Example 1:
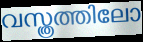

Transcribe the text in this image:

വസ്ത്രത്തിലോ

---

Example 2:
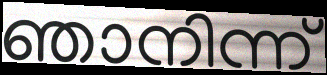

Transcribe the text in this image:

ഞാനിന്ന്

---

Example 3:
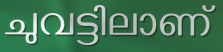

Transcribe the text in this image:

ചുവട്ടിലാണ്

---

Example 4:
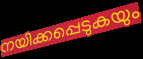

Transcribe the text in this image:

നയിക്കപ്പെടുകയും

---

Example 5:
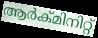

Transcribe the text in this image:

ആർക്മിനിറ്റ്